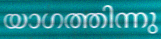
യാഗത്തിന്നു